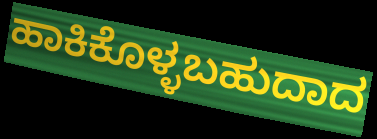
ಹಾಕಿಕೊಳ್ಳಬಹುದಾದ